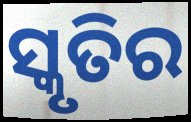
ସ୍କୃତିର